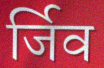
र्जिव